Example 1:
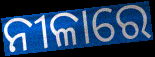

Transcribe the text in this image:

ନୀଳାରେ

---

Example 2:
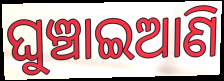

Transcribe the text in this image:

ଘୁଞ୍ଚାଇଆଣି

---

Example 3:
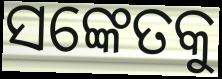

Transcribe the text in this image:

ସଙ୍କେତକୁ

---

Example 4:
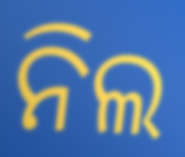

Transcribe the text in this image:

ନିଲ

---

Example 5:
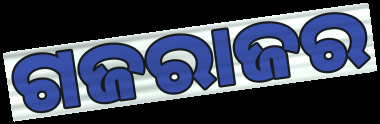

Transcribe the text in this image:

ଗଜରାଜର